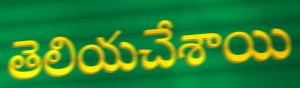
తెలియచేశాయి